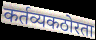
कर्तव्यकठोरता